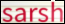
sarsh